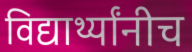
विद्यार्थ्यांनीच